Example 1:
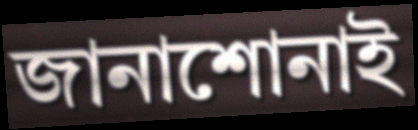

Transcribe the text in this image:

জানাশোনাই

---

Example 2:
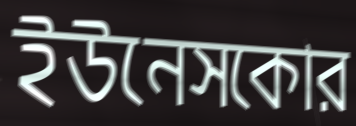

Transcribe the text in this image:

ইউনেসকোর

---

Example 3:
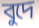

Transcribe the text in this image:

বুদে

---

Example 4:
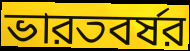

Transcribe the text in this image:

ভারতবর্ষর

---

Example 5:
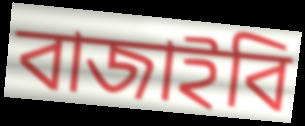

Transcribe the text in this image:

বাজাইবি